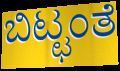
ಬಿಟ್ಟಂತೆ